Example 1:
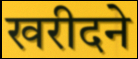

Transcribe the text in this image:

खरीदने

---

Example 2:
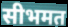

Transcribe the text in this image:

सीभमत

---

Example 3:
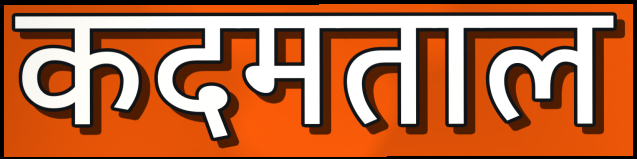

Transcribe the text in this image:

कदमताल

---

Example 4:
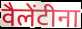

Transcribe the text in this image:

वैलेंटीना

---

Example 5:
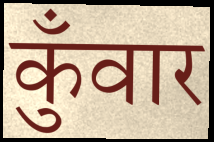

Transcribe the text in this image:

कुँवार